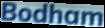
Bodham